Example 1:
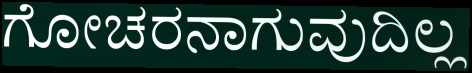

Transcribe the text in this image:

ಗೋಚರನಾಗುವುದಿಲ್ಲ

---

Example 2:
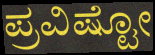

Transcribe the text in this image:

ಪ್ರವಿಷ್ಟೋ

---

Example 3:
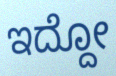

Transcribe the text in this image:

ಇದ್ದೋ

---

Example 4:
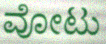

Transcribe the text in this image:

ವೋಟು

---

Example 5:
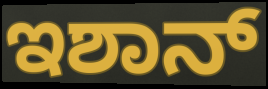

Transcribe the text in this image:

ಇಶಾನ್